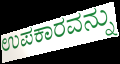
ಉಪಕಾರವನ್ನು